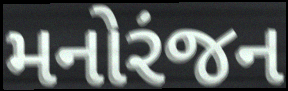
મનોરંજન